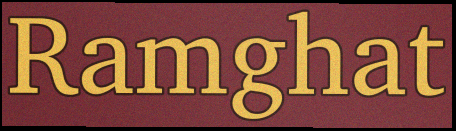
Ramghat